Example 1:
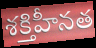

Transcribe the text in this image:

శక్తిహీనత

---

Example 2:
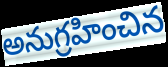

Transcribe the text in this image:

అనుగ్రహించిన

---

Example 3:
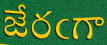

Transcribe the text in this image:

జేరఁగా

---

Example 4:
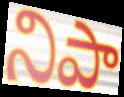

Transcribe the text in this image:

నిపా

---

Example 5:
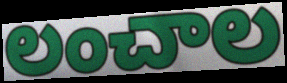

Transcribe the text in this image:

లంచాల